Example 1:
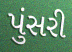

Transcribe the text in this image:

પુંસરી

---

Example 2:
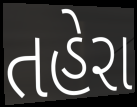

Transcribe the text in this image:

તહેરા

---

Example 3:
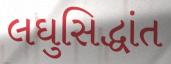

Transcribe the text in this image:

લઘુસિદ્ધાંત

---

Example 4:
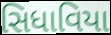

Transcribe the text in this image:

સિધાવિયા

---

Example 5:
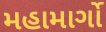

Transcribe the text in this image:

મહામાર્ગો